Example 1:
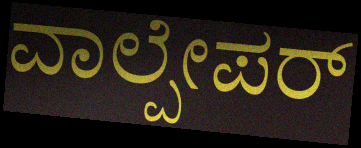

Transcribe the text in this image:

ವಾಲ್ಪೇಪರ್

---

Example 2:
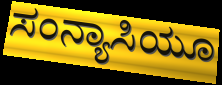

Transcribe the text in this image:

ಸಂನ್ಯಾಸಿಯೂ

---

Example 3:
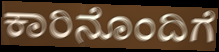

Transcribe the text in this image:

ಕಾರಿನೊಂದಿಗೆ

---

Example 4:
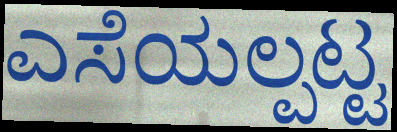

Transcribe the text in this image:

ಎಸೆಯಲ್ಪಟ್ಟ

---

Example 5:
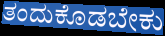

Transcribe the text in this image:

ತಂದುಕೊಡಬೇಕು